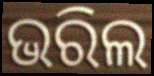
ଭରିଲ